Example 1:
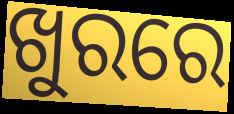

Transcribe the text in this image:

ଖୁରରେ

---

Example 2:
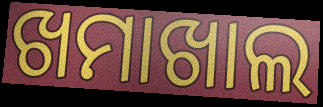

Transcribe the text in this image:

ଖମାଖାଲ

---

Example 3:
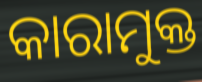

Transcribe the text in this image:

କାରାମୁକ୍ତ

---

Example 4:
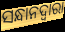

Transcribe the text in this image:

ସନ୍ଧାନଦ୍ୱାରା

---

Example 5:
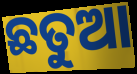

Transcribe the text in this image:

ଛତୁଆ